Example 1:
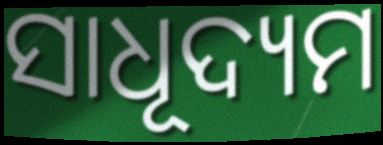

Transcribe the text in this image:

ସାଧୂଦ୍ୟମ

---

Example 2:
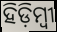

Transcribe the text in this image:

ହିଡ଼ିମ୍ବୀ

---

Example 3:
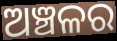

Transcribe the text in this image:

ଅଞ୍ଚଳର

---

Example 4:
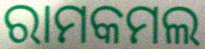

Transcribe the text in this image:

ରାମକମଲ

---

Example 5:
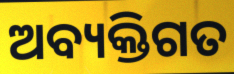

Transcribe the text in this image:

ଅବ୍ୟକ୍ତିଗତ